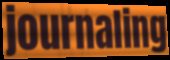
journaling